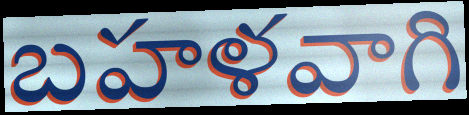
బహళవాగి